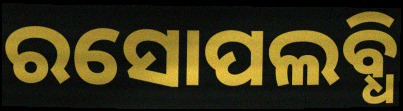
ରସୋପଲବ୍ଧି